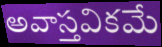
అవాస్తవికమే